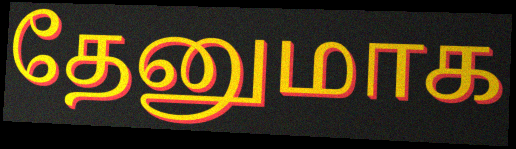
தேனுமாக